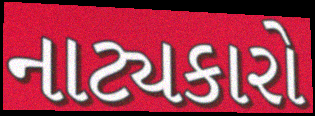
નાટ્યકારો